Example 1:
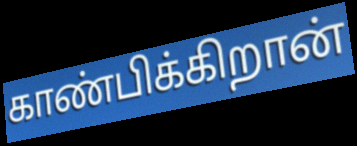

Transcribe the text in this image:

காண்பிக்கிறான்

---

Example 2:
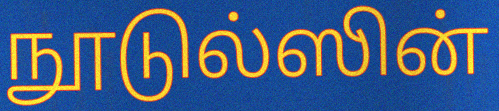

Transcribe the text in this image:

நூடுல்ஸின்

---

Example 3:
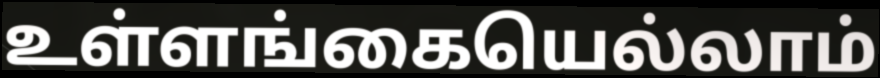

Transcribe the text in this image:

உள்ளங்கையெல்லாம்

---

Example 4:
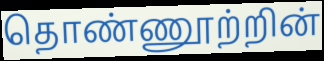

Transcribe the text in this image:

தொண்ணூற்றின்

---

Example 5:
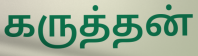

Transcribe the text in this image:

கருத்தன்